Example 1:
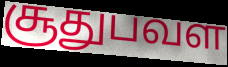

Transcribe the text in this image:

சூதுபவள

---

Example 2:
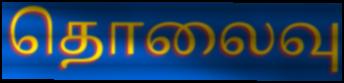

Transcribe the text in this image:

தொலைவு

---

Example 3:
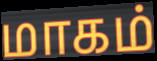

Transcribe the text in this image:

மாகம்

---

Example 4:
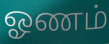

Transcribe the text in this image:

ஓணம்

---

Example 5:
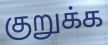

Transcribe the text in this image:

குறுக்க